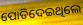
ପୋଡିଦେଇଥିଲେ